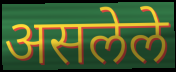
असलेले